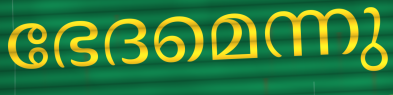
ഭേദമെന്നു